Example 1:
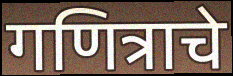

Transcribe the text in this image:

गणित्राचे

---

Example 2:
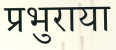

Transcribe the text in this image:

प्रभुराया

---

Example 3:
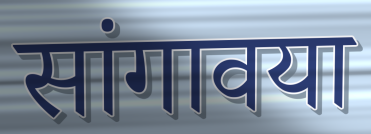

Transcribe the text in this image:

सांगावया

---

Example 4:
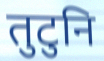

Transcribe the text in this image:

तुटुनि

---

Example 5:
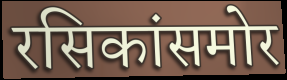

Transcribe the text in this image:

रसिकांसमोर